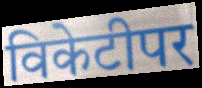
विकेटीपर